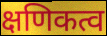
क्षणिकत्व